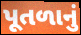
પૂતળાનું